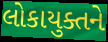
લોકાયુક્તને